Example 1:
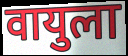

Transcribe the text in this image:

वायुला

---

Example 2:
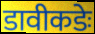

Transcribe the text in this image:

डावीकडेः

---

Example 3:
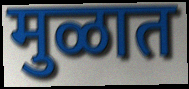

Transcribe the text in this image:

मुळात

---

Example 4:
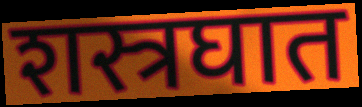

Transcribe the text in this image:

शस्त्रघात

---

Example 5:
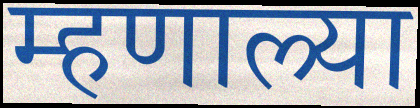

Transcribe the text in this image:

म्हणाल्या